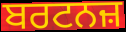
ਬਰਟਨਜ਼